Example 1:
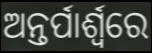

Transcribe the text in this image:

ଅନ୍ତର୍ପାର୍ଶ୍ୱରେ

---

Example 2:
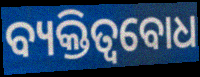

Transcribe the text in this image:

ବ୍ୟକ୍ତିତ୍ୱବୋଧ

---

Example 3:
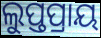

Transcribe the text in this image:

ଲୁପ୍ତପ୍ରାୟ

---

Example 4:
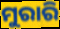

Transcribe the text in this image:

ମୁରାରି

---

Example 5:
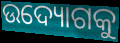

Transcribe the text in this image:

ଉଦ୍ୟୋଗକୁ